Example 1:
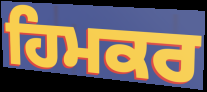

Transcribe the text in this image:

ਹਿਮਕਰ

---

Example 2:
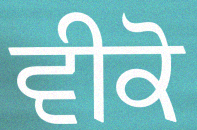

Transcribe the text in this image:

ਵੀਕੋ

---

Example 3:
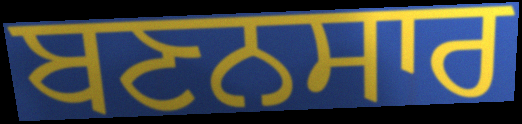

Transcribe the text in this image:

ਬਣਨਸਾਰ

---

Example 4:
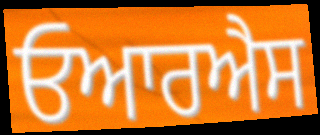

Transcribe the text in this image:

ਓਆਰਐਸ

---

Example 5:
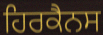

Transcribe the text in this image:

ਹਿਰਕੈਨਸ